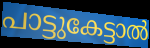
പാട്ടുകേട്ടാൽ